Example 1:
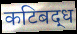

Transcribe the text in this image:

कटिबद्ध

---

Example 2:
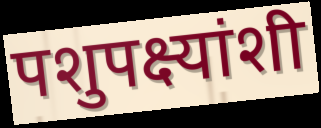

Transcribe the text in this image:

पशुपक्ष्यांशी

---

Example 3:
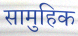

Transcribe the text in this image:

सामुहिक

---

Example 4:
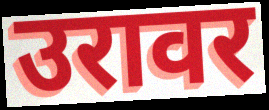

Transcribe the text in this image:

उरावर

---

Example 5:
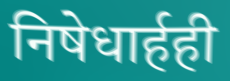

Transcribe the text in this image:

निषेधार्हही